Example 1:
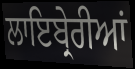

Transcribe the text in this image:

ਲਾਇਬ੍ਰੇਰੀਆਂ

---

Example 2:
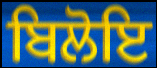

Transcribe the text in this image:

ਬਿਲੋਇ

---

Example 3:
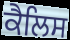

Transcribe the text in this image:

ਕੈਲਿਸ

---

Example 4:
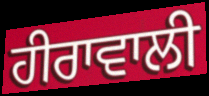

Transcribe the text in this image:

ਹੀਰਾਵਾਲੀ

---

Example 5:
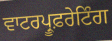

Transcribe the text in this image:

ਵਾਟਰਪ੍ਰੂਫ਼ਰੇਟਿੰਗ